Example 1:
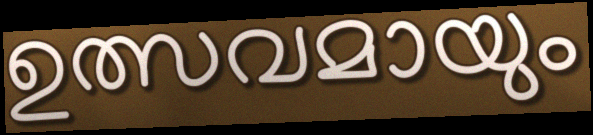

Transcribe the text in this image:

ഉത്സവമായും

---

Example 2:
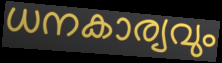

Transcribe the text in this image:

ധനകാര്യവും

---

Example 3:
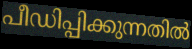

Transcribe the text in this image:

പീഡിപ്പിക്കുന്നതിൽ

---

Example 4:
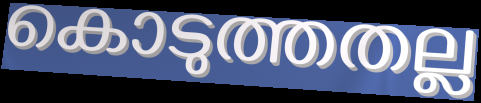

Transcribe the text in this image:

കൊടുത്തതല്ല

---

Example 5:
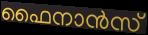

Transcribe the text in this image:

ഫൈനാൻസ്